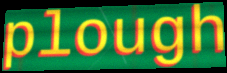
plough